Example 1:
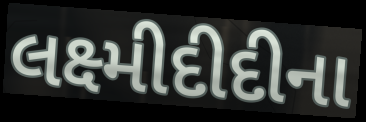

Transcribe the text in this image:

લક્ષ્મીદીદીના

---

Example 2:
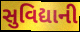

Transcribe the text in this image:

સુવિદ્યાની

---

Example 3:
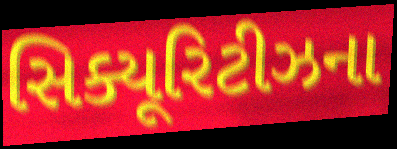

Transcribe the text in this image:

સિક્યૂરિટીઝના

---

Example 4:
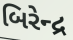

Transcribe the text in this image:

બિરેન્દ્ર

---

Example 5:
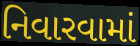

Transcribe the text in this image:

નિવારવામાં